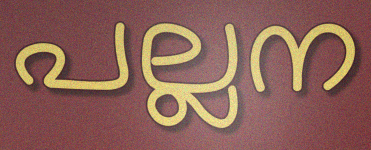
പല്ലന